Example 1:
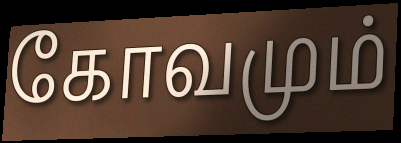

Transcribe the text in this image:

கோவமும்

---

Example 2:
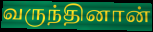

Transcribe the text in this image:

வருந்தினான்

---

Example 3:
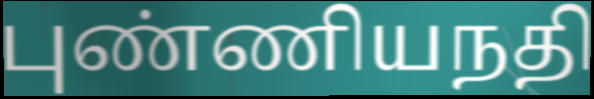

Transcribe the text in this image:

புண்ணியநதி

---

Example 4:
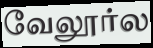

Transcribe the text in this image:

வேலூர்ல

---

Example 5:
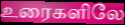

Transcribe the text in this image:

உரைகளிலே